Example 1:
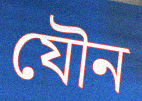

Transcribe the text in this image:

যৌন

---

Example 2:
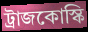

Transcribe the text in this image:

ট্রাজকোস্কি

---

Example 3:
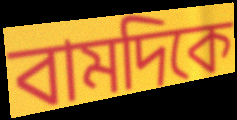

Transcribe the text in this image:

বামদিকে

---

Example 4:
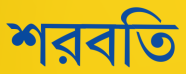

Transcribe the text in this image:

শরবতি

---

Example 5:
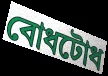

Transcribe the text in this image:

বোধটোধ